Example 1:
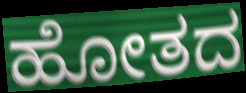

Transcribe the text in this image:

ಹೋತದ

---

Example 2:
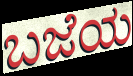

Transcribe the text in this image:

ಬಜೆಯ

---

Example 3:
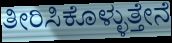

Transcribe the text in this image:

ತೀರಿಸಿಕೊಳ್ಳುತ್ತೇನೆ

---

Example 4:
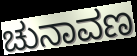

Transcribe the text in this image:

ಚುನಾವಣ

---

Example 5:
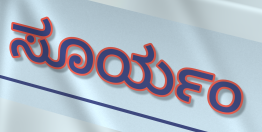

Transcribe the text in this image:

ಸೂರ್ಯಂ